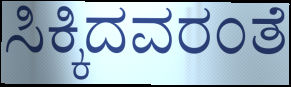
ಸಿಕ್ಕಿದವರಂತೆ